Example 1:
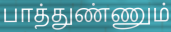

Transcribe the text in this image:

பாத்துண்ணும்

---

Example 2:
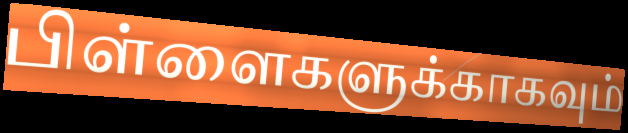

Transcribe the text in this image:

பிள்ளைகளுக்காகவும்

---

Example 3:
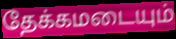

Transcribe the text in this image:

தேக்கமடையும்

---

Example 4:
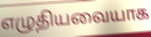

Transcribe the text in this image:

எழுதியவையாக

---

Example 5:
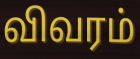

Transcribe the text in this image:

விவரம்